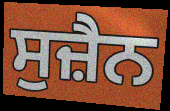
ਸੁਜ਼ੈਨ